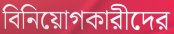
বিনিয়োগকারীদের